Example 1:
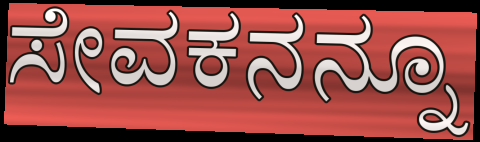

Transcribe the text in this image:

ಸೇವಕನನ್ನೂ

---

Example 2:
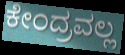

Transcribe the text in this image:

ಕೇಂದ್ರವಲ್ಲ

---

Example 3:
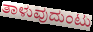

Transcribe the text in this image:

ತಾಳುವುದುಂಟು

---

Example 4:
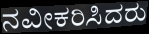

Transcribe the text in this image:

ನವೀಕರಿಸಿದರು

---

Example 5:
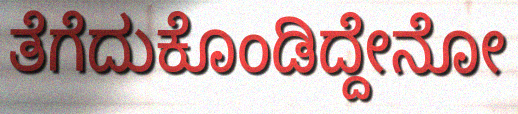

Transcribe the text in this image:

ತೆಗೆದುಕೊಂಡಿದ್ದೇನೋ